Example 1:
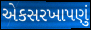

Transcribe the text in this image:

એકસરખાપણું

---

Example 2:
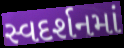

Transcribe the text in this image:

સ્વદર્શનમાં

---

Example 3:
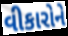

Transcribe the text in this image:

વીકારોને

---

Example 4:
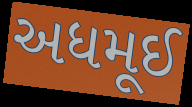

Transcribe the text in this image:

અધમૂઈ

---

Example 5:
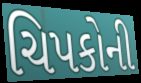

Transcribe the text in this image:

ચિપકોની